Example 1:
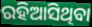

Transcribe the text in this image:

ରହିଆସିଥିବା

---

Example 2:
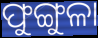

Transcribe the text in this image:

ଫୁଙ୍ଗୁଳା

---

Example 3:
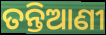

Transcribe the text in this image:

ତନ୍ତିଆଣୀ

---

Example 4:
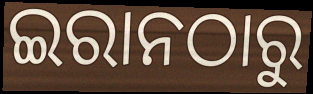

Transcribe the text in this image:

ଇରାନଠାରୁ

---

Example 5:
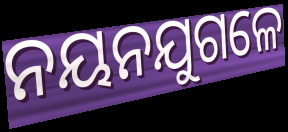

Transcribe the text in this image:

ନୟନଯୁଗଳେ